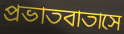
প্রভাতবাতাসে